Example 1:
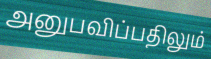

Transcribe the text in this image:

அனுபவிப்பதிலும்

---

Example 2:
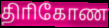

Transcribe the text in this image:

திரிகோண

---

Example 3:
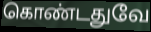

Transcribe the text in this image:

கொண்டதுவே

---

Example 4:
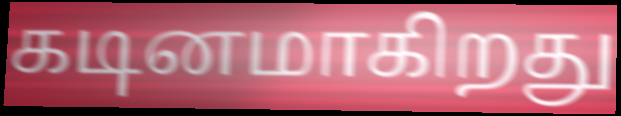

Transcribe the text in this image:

கடினமாகிறது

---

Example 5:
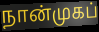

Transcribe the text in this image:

நான்முகப்